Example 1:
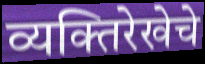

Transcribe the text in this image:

व्यक्तिरेखेचे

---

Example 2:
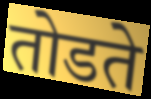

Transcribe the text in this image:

तोडते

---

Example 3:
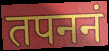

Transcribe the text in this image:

तपननं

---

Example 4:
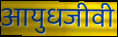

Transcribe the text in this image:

आयुधजीवी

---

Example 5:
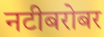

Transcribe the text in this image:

नटीबरोबर